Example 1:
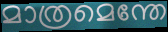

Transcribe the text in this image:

മാത്രമെന്തേ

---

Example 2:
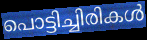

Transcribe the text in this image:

പൊട്ടിച്ചിരികൾ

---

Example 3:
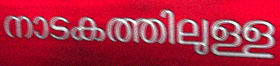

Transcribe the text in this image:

നാടകത്തിലുള്ള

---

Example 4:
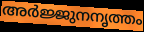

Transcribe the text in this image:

അർജ്ജുനനൃത്തം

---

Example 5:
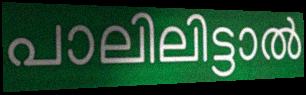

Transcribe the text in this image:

പാലിലിട്ടാൽ